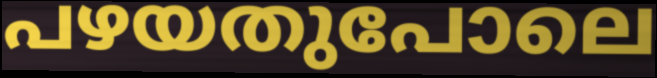
പഴയതുപോലെ